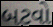
બટવો